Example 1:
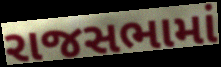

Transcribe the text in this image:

રાજસભામાં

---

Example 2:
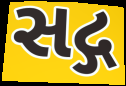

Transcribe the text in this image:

સદ્ગ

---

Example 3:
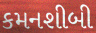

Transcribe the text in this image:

કમનશીબી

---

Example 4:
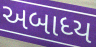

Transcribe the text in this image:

અબાધ્ય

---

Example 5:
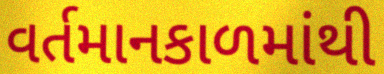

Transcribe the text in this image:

વર્તમાનકાળમાંથી